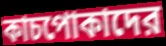
কাচপোকাদের